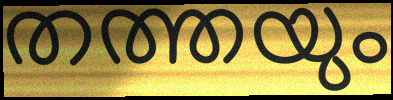
തത്തയും